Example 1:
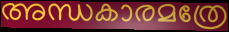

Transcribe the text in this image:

അന്ധകാരമത്രേ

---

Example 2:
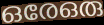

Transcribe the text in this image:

ഒരേഒരു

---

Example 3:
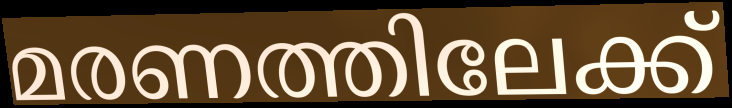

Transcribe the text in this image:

മരണത്തിലേക്ക്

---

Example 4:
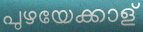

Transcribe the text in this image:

പുഴയേക്കാള്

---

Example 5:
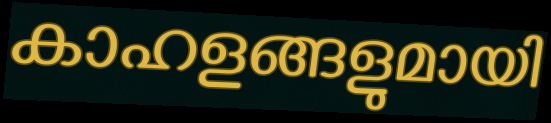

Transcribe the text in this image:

കാഹളങ്ങളുമായി